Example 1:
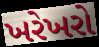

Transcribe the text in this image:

ખરેખરો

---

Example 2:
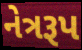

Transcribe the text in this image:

નેત્રરૂપ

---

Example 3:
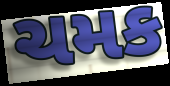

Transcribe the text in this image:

ચમક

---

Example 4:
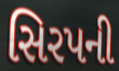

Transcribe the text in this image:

સિરપની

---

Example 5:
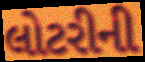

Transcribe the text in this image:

લોટરીની